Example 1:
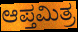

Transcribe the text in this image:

ಆಪ್ತಮಿತ್ರ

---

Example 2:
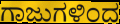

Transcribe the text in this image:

ಗಾಜುಗಳಿಂದ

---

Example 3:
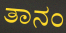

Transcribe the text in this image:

ತಾನಂ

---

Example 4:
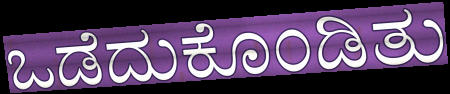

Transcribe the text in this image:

ಒಡೆದುಕೊಂಡಿತು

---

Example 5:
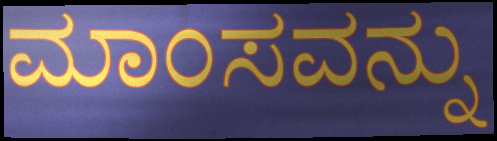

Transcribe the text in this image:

ಮಾಂಸವನ್ನು